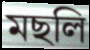
মছলি